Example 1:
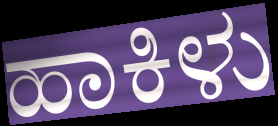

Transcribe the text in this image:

ಹಾಕಿಳು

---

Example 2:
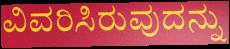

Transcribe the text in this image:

ವಿವರಿಸಿರುವುದನ್ನು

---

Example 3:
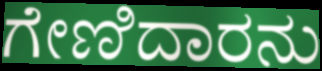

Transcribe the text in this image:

ಗೇಣಿದಾರನು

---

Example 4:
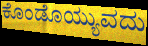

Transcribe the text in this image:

ಕೊಂಡೊಯ್ಯುವದು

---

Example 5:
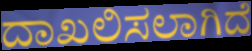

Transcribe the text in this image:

ದಾಖಲಿಸಲಾಗಿದೆ